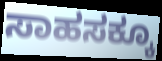
ಸಾಹಸಕ್ಕೂ